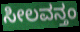
ಸೀಲವನ್ತಂ